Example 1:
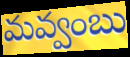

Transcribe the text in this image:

మవ్వంబు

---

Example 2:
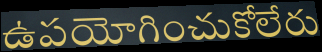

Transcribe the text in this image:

ఉపయోగించుకోలేరు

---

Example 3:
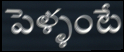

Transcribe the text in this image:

పెళ్ళంటే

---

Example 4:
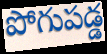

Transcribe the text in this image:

పోగుపడ్డ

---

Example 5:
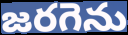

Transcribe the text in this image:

జరగెను